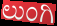
ಲುಂಗಿ